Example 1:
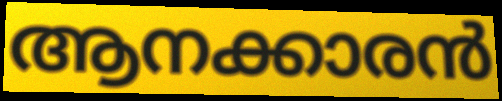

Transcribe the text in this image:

ആനക്കാരൻ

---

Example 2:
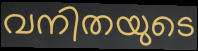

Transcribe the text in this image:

വനിതയുടെ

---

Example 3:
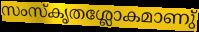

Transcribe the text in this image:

സംസ്കൃതശ്ലോകമാണു്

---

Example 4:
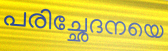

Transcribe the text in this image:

പരിച്ഛേദനയെ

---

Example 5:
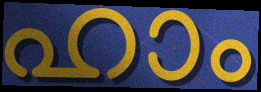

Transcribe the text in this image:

ഹാം